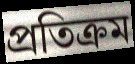
প্ৰতিক্ৰম